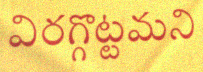
విరగ్గొట్టమని